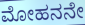
ಮೋಹನನೇ